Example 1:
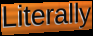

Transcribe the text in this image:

Literally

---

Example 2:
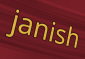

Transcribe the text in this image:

janish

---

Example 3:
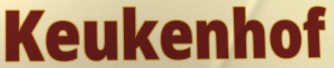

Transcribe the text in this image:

Keukenhof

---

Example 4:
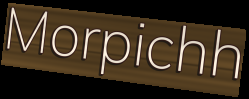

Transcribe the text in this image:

Morpichh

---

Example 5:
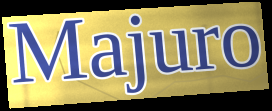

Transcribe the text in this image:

Majuro